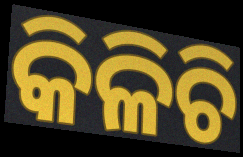
କିଳିଚି